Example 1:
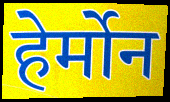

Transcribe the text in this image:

हेर्मोन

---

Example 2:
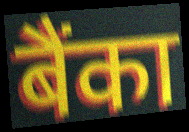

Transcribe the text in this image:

बैंका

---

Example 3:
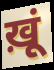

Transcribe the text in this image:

ख़ूं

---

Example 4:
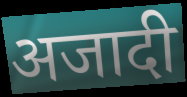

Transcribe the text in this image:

अजादी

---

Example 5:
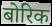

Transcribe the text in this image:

बोरिक